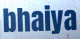
bhaiya